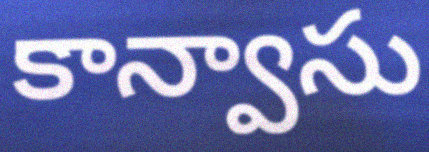
కాన్వాసు